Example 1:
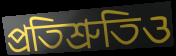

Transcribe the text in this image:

প্রতিশ্রুতিও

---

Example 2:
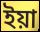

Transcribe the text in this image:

ইয়া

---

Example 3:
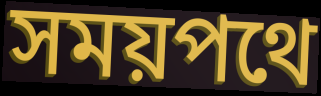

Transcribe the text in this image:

সময়পথে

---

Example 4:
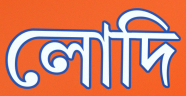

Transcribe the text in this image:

লোদি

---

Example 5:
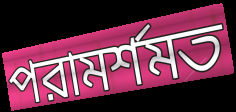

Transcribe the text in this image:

পরামর্শমত